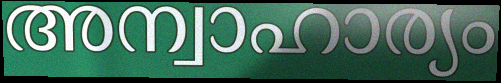
അന്വാഹാര്യം